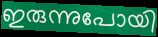
ഇരുന്നുപോയി